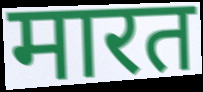
मारत